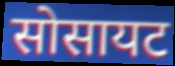
सोसायट